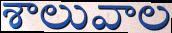
శాలువాల